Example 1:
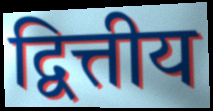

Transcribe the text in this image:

द्वित्तीय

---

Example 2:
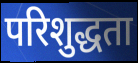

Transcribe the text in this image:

परिशुद्धता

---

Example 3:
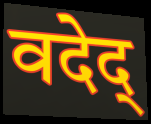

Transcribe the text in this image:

वदेद्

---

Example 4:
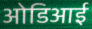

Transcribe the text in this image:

ओडिआई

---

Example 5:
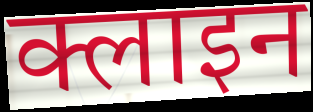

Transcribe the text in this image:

क्लाइन